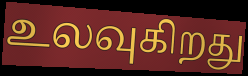
உலவுகிறது